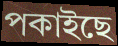
পকাইছে